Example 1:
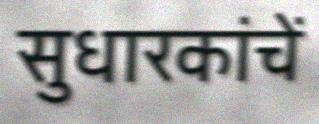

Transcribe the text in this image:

सुधारकांचें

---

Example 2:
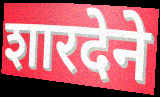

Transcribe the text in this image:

शारदेने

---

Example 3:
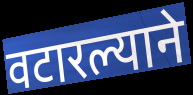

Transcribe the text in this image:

वटारल्याने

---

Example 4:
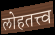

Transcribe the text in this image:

लोहतत्त्व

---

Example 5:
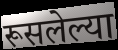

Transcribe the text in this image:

रूसलेल्या